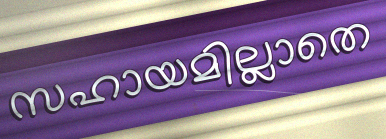
സഹായമില്ലാതെ